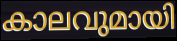
കാലവുമായി